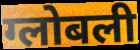
ग्लोबली